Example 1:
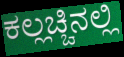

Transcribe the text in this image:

ಕಲ್ಲಚ್ಚಿನಲ್ಲಿ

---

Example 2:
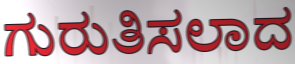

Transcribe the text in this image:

ಗುರುತಿಸಲಾದ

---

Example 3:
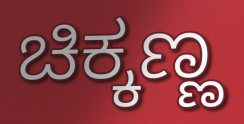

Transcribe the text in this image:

ಚಿಕ್ಕಣ್ಣ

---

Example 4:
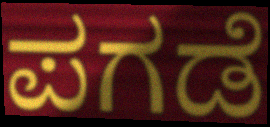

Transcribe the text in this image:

ಪಗಡೆ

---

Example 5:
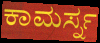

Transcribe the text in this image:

ಕಾಮರ್ಸ್ನ